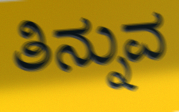
ತಿನ್ನುವ